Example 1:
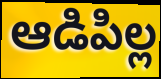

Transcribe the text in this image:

ఆడిపిల్ల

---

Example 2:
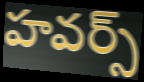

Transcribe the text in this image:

హవర్స్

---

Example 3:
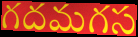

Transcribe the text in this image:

గదమగస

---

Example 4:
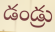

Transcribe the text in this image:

డండ్రు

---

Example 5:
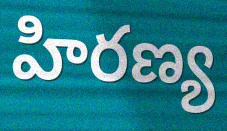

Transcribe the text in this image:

హిరణ్య